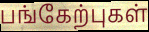
பங்கேற்புகள்